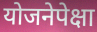
योजनेपेक्षा